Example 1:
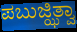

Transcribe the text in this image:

ಪಬುಜ್ಝಿತ್ವಾ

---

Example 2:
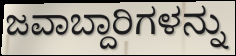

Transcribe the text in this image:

ಜವಾಬ್ದಾರಿಗಳನ್ನು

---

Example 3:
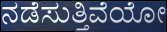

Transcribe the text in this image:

ನಡೆಸುತ್ತಿವೆಯೋ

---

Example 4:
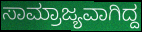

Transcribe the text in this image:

ಸಾಮ್ರಾಜ್ಯವಾಗಿದ್ದ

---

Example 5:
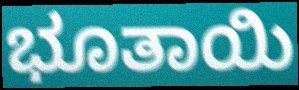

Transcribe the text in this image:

ಭೂತಾಯಿ